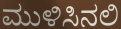
ಮುಳಿಸಿನಲಿ